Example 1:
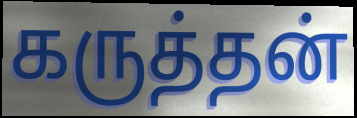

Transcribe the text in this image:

கருத்தன்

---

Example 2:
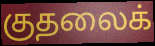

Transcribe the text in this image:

குதலைக்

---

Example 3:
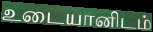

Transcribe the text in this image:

உடையானிடம்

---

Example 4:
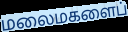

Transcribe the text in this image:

மலைமகளைப்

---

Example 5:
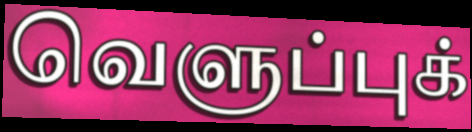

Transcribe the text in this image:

வெளுப்புக்